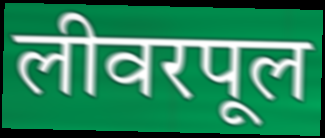
लीवरपूल